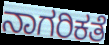
ನಾಗರಿಕತೆ